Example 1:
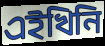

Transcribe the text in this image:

এইখিনি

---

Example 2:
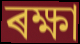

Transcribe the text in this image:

ৰক্ষা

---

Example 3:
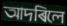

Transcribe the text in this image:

আদৰিলে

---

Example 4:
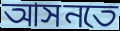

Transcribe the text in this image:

আসনতে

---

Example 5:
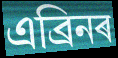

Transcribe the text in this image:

এব্ৰিনৰ